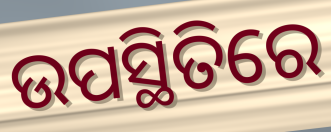
ଉପସ୍ଥିତିରେ